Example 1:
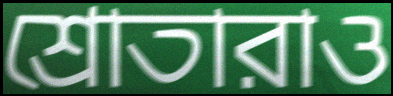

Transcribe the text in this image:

শ্রোতারাও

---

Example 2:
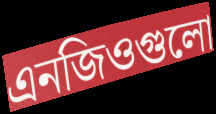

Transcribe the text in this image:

এনজিওগুলো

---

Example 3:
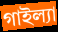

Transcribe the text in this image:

গাইল্যা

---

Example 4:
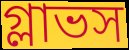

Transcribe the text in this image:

গ্লাভস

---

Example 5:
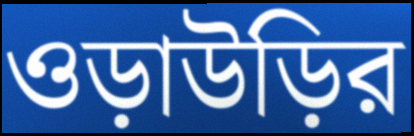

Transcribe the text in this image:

ওড়াউড়ির